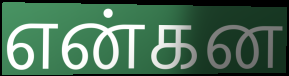
என்கன